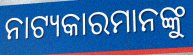
ନାଟ୍ଯକାରମାନଙ୍କୁ